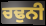
ਚਢੁਨੀ